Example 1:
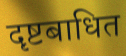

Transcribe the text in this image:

दृष्टबाधित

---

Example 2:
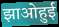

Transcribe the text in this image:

झाओहुई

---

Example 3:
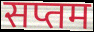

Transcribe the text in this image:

सप्तम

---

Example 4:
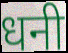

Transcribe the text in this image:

धनी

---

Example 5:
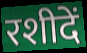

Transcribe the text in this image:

रशीदें